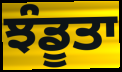
ਝੰਡੂਤਾ